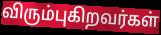
விரும்புகிறவர்கள்